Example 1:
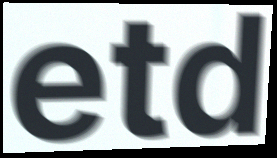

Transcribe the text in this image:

etd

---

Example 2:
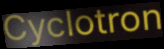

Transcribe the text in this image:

Cyclotron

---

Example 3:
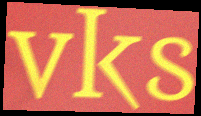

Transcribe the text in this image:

vks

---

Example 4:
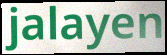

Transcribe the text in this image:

jalayen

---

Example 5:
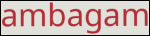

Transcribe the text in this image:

ambagam